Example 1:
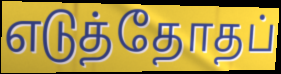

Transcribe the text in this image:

எடுத்தோதப்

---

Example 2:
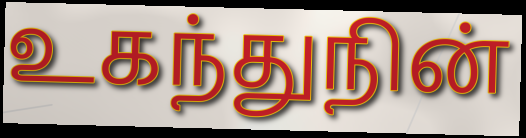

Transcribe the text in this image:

உகந்துநின்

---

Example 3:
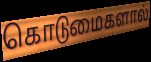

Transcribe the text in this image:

கொடுமைகளால்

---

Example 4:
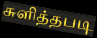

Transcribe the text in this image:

சுளித்தபடி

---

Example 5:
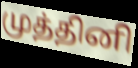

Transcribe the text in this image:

முத்தினி